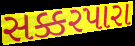
સક્કરપારા